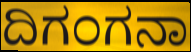
ದಿಗಂಗನಾ